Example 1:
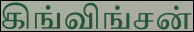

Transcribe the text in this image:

கிங்விங்சன்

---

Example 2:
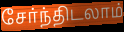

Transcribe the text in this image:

சேர்ந்திடலாம்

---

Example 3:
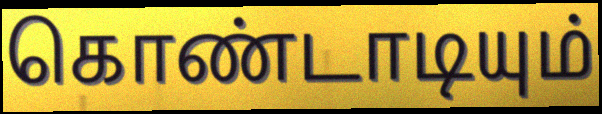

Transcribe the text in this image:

கொண்டாடியும்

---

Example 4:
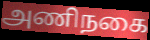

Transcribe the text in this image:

அணிநகை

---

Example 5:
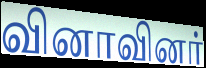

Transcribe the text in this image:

வினாவினர்